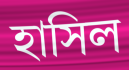
হাসিল